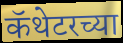
कॅथेटरच्या